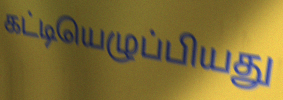
கட்டியெழுப்பியது